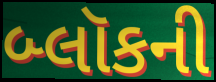
બ્લૉકની